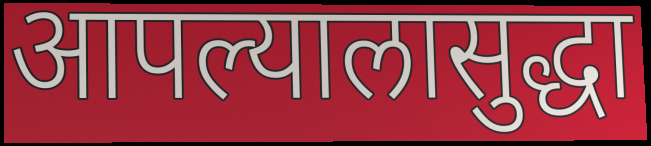
आपल्यालासुद्धा